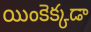
యింకెక్కడా